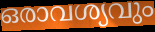
ഒരാവശ്യവും